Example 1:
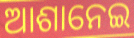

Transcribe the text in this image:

ଆଶାନେଇ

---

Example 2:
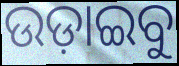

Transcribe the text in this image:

ଉଡ଼ାଇବୁ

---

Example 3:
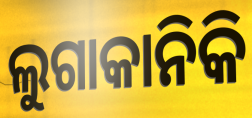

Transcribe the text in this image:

ଲୁଗାକାନିକି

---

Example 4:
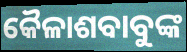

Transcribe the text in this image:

କୈଳାଶବାବୁଙ୍କ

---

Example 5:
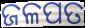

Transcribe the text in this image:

ଜଳପତ